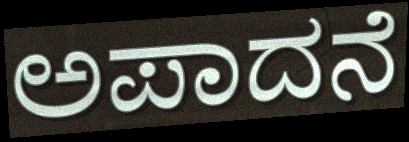
ಅಪಾದನೆ